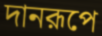
দানরূপে